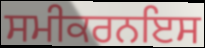
ਸਮੀਕਰਨਇਸ